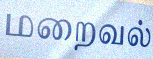
மறைவல்